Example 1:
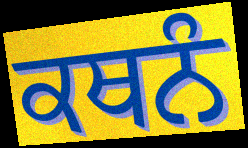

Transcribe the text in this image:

ਕਥਨੰ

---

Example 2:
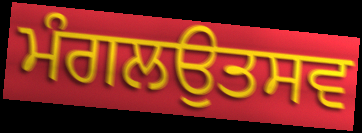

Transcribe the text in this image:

ਮੰਗਲਉਤਸਵ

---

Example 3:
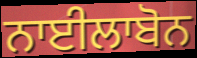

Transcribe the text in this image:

ਨਾਈਲਾਬੋਨ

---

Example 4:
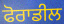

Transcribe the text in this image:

ਫੋਰਾਡੀਲ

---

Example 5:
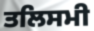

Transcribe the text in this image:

ਤਲਿਸਮੀ